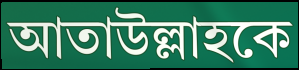
আতাউল্লাহকে